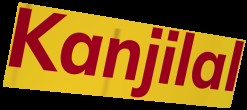
Kanjilal